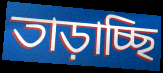
তাড়াচ্ছি